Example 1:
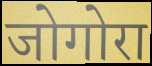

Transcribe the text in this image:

जोगोरा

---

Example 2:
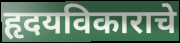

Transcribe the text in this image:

हृदयविकाराचे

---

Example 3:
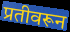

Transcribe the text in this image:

प्रतीवरून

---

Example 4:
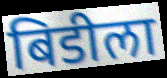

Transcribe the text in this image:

बिडीला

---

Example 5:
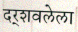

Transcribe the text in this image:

दर्शवलेला